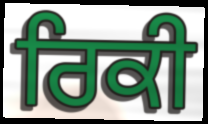
ਰਿਕੀ